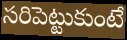
సరిపెట్టుకుంటే